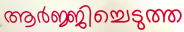
ആർജ്ജിച്ചെടുത്ത